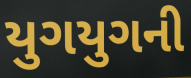
યુગયુગની